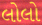
લોલો